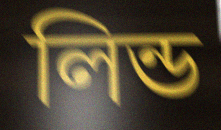
লিন্ড